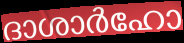
ദാശാർഹോ